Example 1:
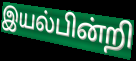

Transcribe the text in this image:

இயல்பின்றி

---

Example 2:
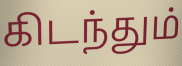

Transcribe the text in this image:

கிடந்தும்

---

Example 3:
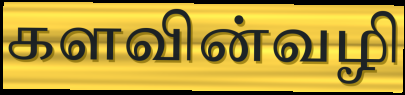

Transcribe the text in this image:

களவின்வழி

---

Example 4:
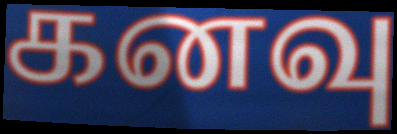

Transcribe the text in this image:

கனவு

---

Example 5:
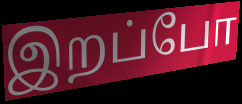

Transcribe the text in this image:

இறப்போ